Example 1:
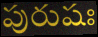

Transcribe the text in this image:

పురుషః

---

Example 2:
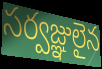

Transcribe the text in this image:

సర్వజ్ఞులైన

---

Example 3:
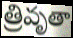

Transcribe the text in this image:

త్రివృతా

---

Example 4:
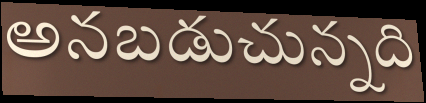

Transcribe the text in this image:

అనబడుచున్నది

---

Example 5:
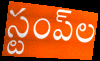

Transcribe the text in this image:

స్టంప్‌ల